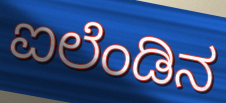
ಐಲೆಂಡಿನ